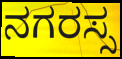
ನಗರಸ್ಸ